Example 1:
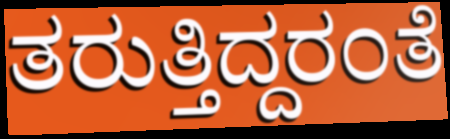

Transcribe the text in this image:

ತರುತ್ತಿದ್ದರಂತೆ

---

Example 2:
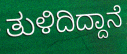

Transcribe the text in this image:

ತುಳಿದಿದ್ದಾನೆ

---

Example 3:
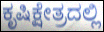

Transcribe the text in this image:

ಕೃಷಿಕ್ಷೇತ್ರದಲ್ಲಿ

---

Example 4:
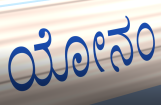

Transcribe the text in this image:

ಯೋನಂ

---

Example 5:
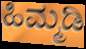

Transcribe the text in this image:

ಹಿಮ್ಮಡಿ